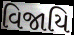
વિજાયિ